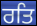
ਰਤਿ